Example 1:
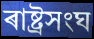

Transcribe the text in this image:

ৰাষ্ট্ৰসংঘ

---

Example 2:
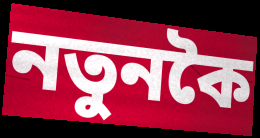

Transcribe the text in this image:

নতুনকৈ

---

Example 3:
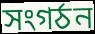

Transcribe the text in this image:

সংগঠন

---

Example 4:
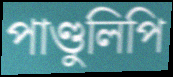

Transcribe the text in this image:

পাণ্ডুলিপি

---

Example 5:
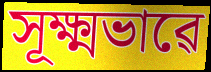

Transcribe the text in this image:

সূক্ষ্মভাৱে